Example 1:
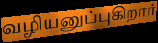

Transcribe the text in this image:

வழியனுப்புகிறார்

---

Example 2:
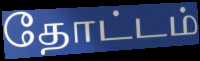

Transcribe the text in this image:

தோட்டம்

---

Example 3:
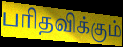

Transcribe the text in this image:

பரிதவிக்கும்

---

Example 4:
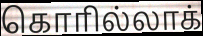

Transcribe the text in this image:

கொரில்லாக்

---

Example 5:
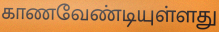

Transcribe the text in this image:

காணவேண்டியுள்ளது